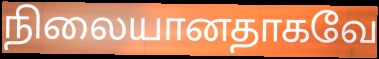
நிலையானதாகவே